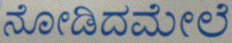
ನೋಡಿದಮೇಲೆ